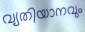
വ്യതിയാനവും